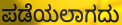
ಪಡೆಯಲಾಗದು